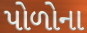
પોળોના